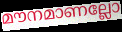
മൗനമാണല്ലോ